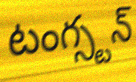
టంగ్స్టన్